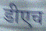
डीएच